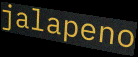
jalapeno